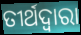
ତୀର୍ଥଦ୍ବାରା